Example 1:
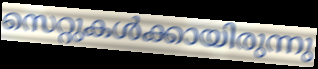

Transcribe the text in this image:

സെറ്റുകൾക്കായിരുന്നു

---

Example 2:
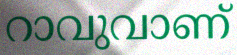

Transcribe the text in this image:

റാവുവാണ്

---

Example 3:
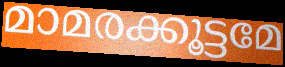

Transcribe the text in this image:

മാമരക്കൂട്ടമേ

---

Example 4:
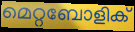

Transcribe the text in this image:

മെറ്റബോളിക്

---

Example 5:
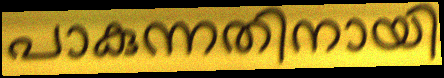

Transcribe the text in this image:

പാകുന്നതിനായി